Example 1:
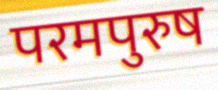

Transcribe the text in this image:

परमपुरुष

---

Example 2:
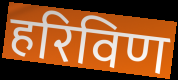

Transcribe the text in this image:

हरिविण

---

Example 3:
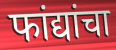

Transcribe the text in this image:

फांद्यांचा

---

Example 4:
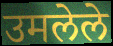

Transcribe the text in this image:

उमलेले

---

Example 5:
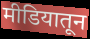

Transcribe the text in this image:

मीडियातून